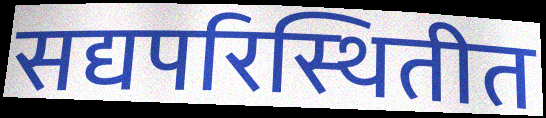
सद्यपरिस्थितीत